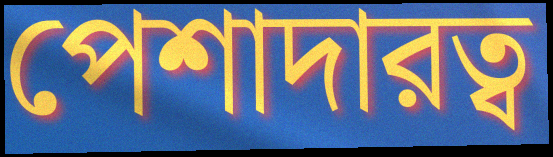
পেশাদারত্ব